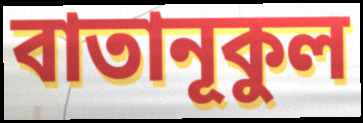
বাতানূকুল